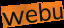
webu